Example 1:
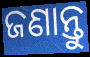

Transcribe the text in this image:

ଜଣାନ୍ତୁ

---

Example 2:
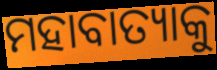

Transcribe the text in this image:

ମହାବାତ୍ୟାକୁ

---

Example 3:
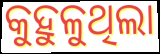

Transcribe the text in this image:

କୁହୁଳୁଥିଲା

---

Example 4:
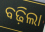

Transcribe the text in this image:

ବଢ଼ିଲା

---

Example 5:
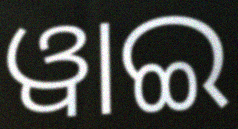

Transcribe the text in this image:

ୱାଇ